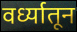
वर्ध्यातून